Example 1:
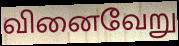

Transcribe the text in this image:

வினைவேறு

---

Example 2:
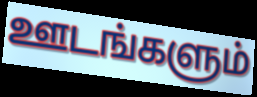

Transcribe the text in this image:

ஊடங்களும்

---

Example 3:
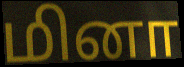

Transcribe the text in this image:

மினா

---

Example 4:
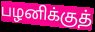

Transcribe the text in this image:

பழனிக்குத்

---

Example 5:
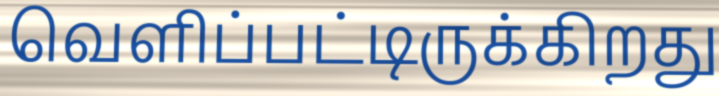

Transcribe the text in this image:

வெளிப்பட்டிருக்கிறது